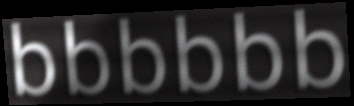
bbbbbb